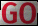
GO